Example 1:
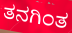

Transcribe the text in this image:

ತನಗಿಂತ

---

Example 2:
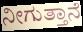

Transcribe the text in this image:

ನೀಗುತ್ತಾನೆ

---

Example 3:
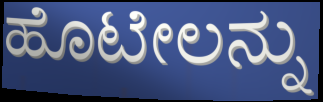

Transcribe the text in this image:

ಹೊಟೇಲನ್ನು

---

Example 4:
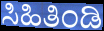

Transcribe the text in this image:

ಸಿಹಿತಿಂಡಿ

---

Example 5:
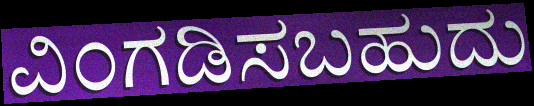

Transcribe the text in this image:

ವಿಂಗಡಿಸಬಹುದು